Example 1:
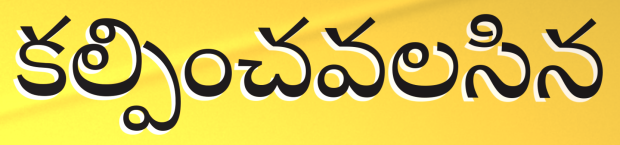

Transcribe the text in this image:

కల్పించవలసిన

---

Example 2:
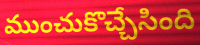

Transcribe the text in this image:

ముంచుకొచ్చేసింది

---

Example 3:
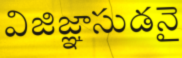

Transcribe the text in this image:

విజిజ్ఞాసుడనై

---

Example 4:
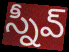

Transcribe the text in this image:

స్నీవ్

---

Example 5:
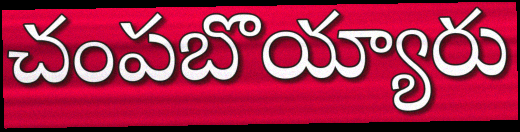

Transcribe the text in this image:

చంపబొయ్యారు